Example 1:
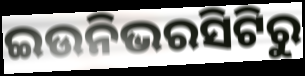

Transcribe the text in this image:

ଇଉନିଭରସିଟିରୁ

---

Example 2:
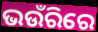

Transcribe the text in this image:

ଭଉଁରିରେ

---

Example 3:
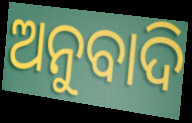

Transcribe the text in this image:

ଅନୁବାଦି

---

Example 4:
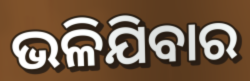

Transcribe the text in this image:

ଭଳିଯିବାର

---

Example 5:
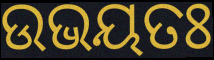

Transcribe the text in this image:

ଉଭୟତଃ